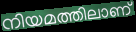
നിയമത്തിലാണ്